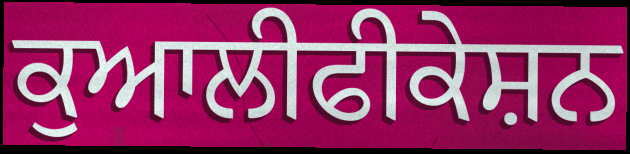
ਕੁਆਲੀਫੀਕੇਸ਼ਨ